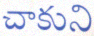
చాకుని